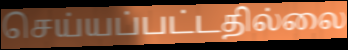
செய்யப்பட்டதில்லை